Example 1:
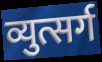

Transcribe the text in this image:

व्युत्सर्ग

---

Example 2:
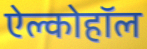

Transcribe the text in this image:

ऐल्कोहॉल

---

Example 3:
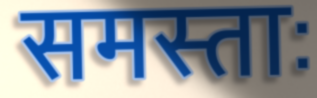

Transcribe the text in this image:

समस्ताः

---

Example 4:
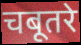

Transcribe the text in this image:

चबूतरे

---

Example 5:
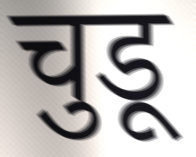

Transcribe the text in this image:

चुडू